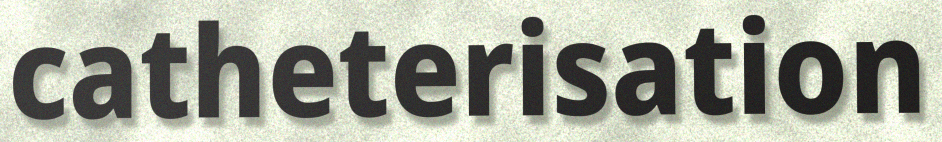
catheterisation